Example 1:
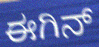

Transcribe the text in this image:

ಈಗಿನ್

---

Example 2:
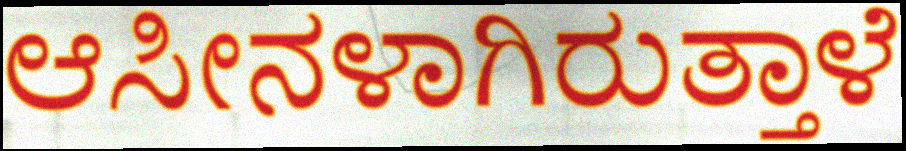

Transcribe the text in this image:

ಆಸೀನಳಾಗಿರುತ್ತಾಳೆ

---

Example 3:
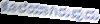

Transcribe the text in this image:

ಕೊಲೆಯಾಗಿರುವುದು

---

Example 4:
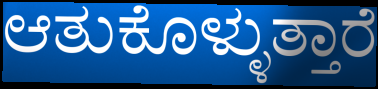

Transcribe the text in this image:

ಆತುಕೊಳ್ಳುತ್ತಾರೆ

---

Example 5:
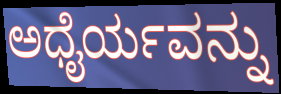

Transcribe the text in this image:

ಅಧೈರ್ಯವನ್ನು